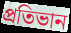
প্রতিভান